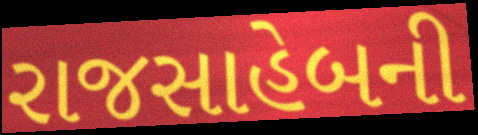
રાજસાહેબની